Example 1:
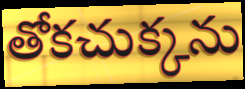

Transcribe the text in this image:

తోకచుక్కను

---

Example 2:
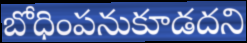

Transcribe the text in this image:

బోధింపనుకూడదని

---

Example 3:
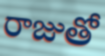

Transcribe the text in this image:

రాజుతో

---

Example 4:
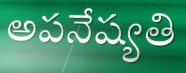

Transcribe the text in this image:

అపనేష్యతి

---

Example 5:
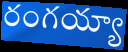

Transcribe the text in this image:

రంగయ్యా